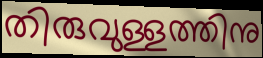
തിരുവുള്ളത്തിനു